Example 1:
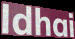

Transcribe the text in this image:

Idhai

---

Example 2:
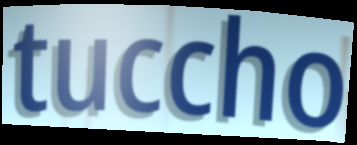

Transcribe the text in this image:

tuccho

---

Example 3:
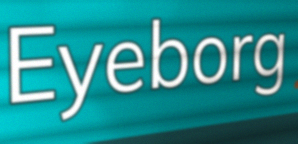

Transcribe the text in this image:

Eyeborg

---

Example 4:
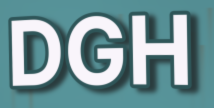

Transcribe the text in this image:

DGH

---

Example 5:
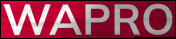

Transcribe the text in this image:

WAPRO